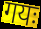
गयः